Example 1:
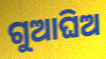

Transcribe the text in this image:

ଗୁଆଘିଅ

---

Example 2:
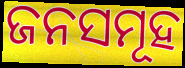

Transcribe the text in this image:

ଜନସମୂହ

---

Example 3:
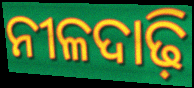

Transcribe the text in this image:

ନୀଳଦାଢ଼ି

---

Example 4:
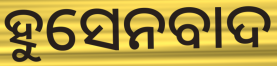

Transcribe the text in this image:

ହୁସେନବାଦ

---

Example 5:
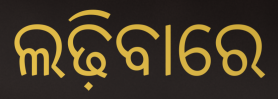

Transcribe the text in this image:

ଲଢ଼ିବାରେ